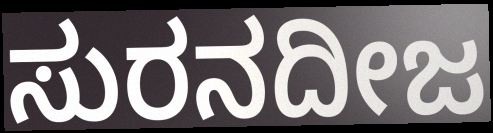
ಸುರನದೀಜ